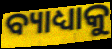
ବ୍ୟାଧ୍ୟାକୁ